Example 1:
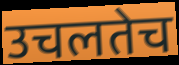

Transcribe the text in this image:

उचलतेच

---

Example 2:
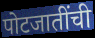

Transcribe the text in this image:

पोटजातींची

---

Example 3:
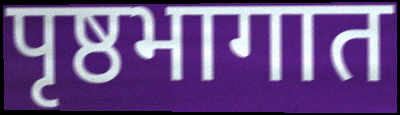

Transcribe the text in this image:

पृष्ठभागात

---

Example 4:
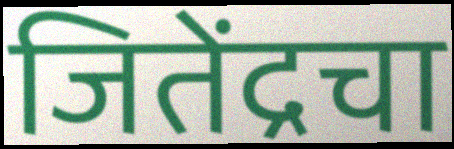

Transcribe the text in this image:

जितेंद्रचा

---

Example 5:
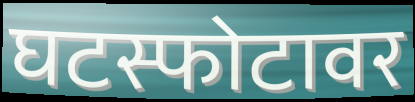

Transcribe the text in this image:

घटस्फोटावर